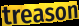
treason